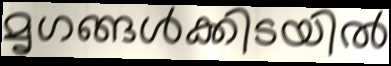
മൃഗങ്ങൾക്കിടയിൽ